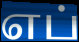
எப்